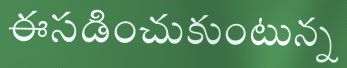
ఈసడించుకుంటున్న